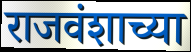
राजवंशाच्या